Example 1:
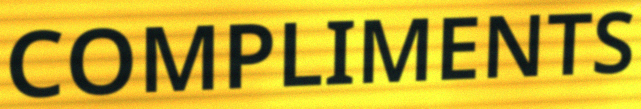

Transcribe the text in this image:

COMPLIMENTS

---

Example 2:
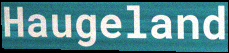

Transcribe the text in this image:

Haugeland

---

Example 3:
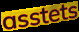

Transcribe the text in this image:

asstets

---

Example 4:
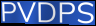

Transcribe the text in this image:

PVDPS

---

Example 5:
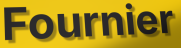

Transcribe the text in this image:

Fournier